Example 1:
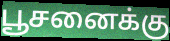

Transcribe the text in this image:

பூசனைக்கு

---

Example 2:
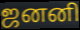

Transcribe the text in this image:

ஜனனி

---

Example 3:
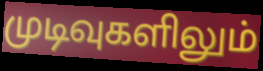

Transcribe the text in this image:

முடிவுகளிலும்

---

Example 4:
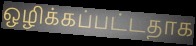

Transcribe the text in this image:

ஒழிக்கப்பட்டதாக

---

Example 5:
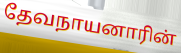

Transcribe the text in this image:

தேவநாயனாரின்